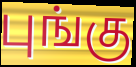
புங்கு